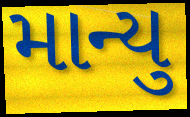
માન્યુ